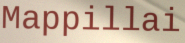
Mappillai